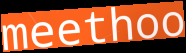
meethoo